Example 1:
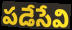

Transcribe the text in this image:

పడేసేవి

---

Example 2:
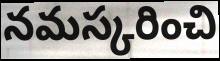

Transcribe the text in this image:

నమస్కరించి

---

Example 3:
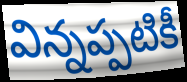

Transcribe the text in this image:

విన్నప్పటికీ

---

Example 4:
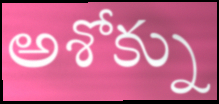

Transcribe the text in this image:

అశోక్ను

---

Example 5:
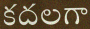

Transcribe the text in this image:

కదలగా